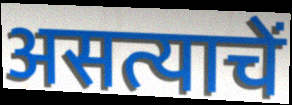
असत्याचें